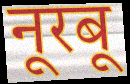
नूरबू